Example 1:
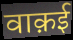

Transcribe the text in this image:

वाक़ई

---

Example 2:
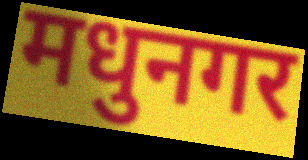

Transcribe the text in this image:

मधुनगर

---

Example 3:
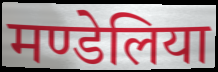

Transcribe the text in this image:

मण्डेलिया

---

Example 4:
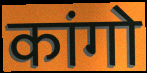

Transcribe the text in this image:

कांगो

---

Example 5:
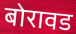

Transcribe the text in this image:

बोरावड